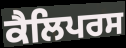
ਕੈਲਿਪਰਸ